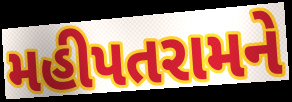
મહીપતરામને